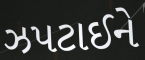
ઝપટાઈને